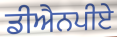
ਡੀਐਨਪੀਏ